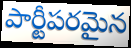
పార్టీపరమైన